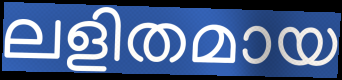
ലളിതമായ